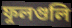
ফুলগুলি